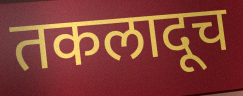
तकलादूच